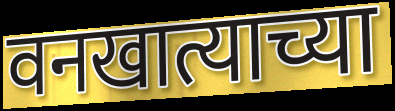
वनखात्याच्या